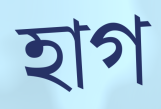
হাগ